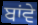
ਬਾਂਵੇ